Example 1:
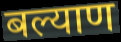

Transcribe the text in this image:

बल्याण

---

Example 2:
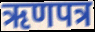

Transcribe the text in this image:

ऋणपत्र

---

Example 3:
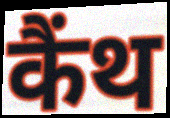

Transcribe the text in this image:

कैंथ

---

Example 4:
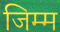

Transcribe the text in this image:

जिम्म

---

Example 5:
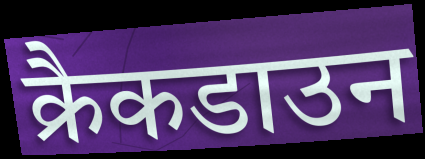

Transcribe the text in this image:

क्रैकडाउन